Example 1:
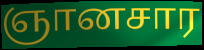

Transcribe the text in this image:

ஞானசார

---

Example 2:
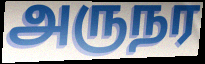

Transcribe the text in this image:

அருநர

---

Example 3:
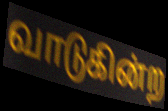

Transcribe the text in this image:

வாடுகின்ற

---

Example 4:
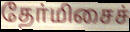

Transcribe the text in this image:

தேர்மிசைச்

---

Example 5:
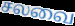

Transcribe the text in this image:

சலவை